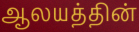
ஆலயத்தின்